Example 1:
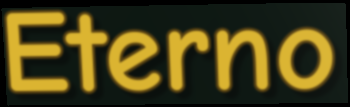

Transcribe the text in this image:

Eterno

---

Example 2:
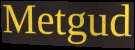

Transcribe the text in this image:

Metgud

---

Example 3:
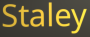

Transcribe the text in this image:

Staley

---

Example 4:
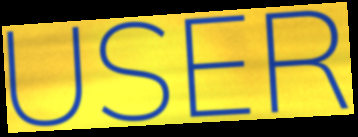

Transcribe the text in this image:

USER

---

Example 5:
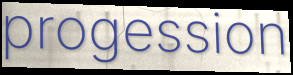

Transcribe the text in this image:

progession